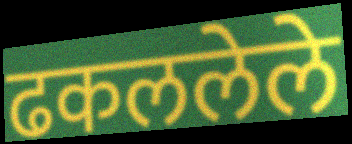
ढकललेले